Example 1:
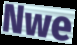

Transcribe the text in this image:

Nwe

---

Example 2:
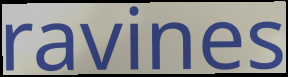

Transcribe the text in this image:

ravines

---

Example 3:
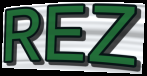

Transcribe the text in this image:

REZ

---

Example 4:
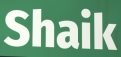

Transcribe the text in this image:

Shaik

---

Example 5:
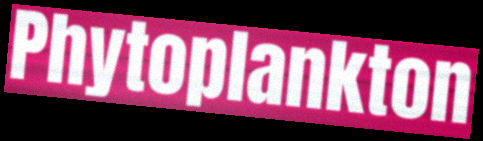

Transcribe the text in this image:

Phytoplankton